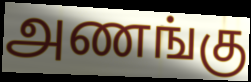
அணங்கு